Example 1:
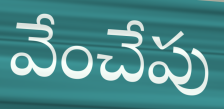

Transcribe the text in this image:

వేంచేపు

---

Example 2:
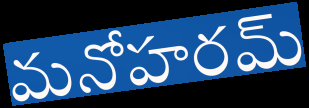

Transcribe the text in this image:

మనోహరమ్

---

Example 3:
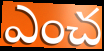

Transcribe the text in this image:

ఎంచ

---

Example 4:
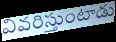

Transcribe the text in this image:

వివరిస్తుంటాడు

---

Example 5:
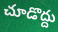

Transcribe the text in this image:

చూడొద్దు